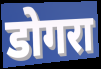
डोगरा